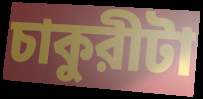
চাকুরীটা